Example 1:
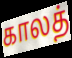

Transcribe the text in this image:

காலத்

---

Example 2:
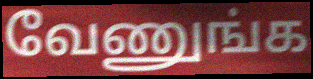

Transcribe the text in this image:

வேணுங்க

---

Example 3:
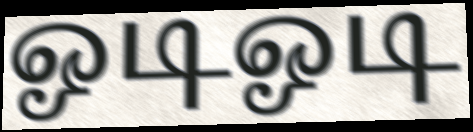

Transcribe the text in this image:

ஓடிஓடி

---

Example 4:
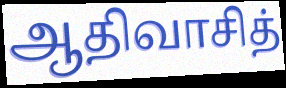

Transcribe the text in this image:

ஆதிவாசித்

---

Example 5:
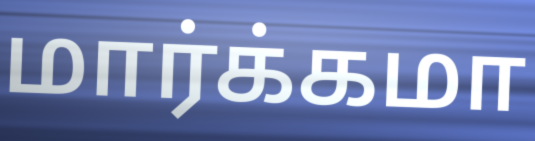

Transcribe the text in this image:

மார்க்கமா